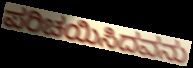
ಪರಿಚಯಿಸಿದವನು